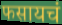
फसायचं